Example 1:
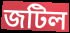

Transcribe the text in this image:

জটিল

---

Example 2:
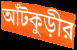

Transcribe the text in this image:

আঁটকুড়ীর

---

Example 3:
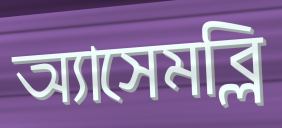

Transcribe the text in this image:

অ্যাসেমব্লি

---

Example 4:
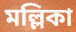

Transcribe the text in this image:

মল্লিকা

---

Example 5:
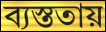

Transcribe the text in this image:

ব্যস্ততায়